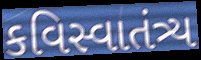
કવિસ્વાતંત્ર્ય